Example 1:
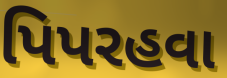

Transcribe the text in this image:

પિપરહવા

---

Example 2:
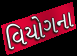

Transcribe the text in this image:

વિયોગના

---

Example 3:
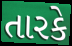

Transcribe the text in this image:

તારકે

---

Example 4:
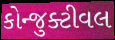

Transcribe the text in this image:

કોન્જુક્ટીવલ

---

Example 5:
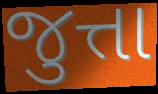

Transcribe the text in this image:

જુત્તા